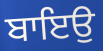
ਬਾਇਉ